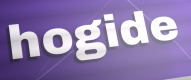
hogide